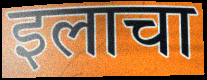
इलाचा